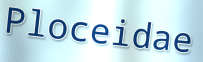
Ploceidae